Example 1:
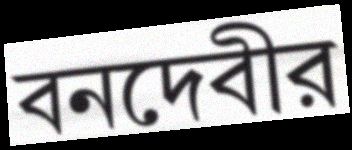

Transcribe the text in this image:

বনদেবীর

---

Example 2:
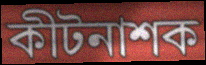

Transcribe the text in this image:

কীটনাশক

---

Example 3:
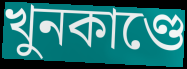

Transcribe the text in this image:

খুনকাণ্ডে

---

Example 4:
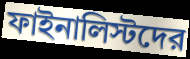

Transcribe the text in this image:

ফাইনালিস্টদের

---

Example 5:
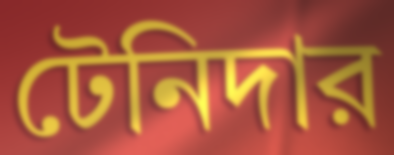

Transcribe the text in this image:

টেনিদার